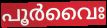
പൂർവൈഃ